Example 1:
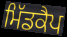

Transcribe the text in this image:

ਮਿੱਡਕੈਪ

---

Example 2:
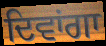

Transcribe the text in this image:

ਦਿਵਾਂਗਾ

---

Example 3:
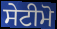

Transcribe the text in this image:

ਸੇਟੀਮੋ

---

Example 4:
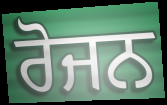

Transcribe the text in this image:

ਰੋਜਨ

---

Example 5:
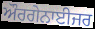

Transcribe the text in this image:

ਔਰਗੇਨਾਈਜਰ